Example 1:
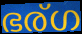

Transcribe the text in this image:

ഭര്ഗ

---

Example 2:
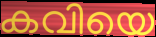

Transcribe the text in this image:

കവിയെ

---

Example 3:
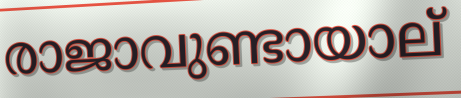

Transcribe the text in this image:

രാജാവുണ്ടായാല്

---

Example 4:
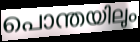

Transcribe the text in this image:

പൊന്തയിലും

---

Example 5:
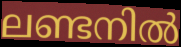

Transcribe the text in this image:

ലണ്ടനിൽ